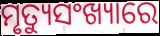
ମୃତ୍ୟୁସଂଖ୍ୟାରେ